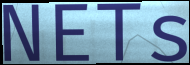
NETs